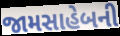
જામસાહેબની